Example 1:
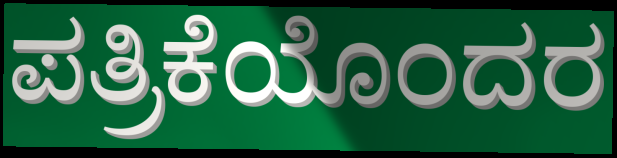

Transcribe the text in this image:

ಪತ್ರಿಕೆಯೊಂದರ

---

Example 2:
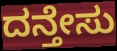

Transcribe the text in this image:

ದನ್ತೇಸು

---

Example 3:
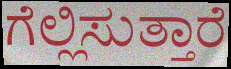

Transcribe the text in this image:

ಗೆಲ್ಲಿಸುತ್ತಾರೆ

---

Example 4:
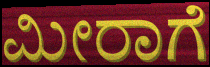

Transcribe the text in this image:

ಮೀರಾಗೆ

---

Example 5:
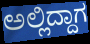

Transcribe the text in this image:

ಅಲ್ಲಿದ್ದಾಗ